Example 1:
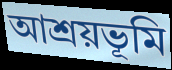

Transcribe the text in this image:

আশ্রয়ভূমি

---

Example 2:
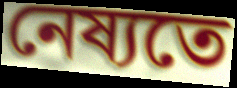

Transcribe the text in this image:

নেষ্যতে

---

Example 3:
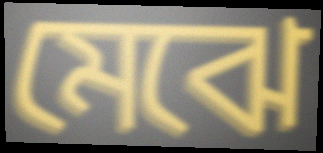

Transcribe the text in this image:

মেঝে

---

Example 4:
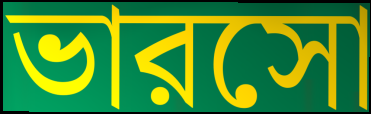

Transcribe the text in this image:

ভারসো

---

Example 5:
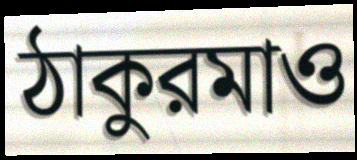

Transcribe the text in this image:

ঠাকুরমাও